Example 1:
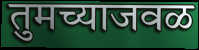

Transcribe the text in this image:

तुमच्याजवळ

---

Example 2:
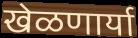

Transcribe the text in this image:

खेळणार्या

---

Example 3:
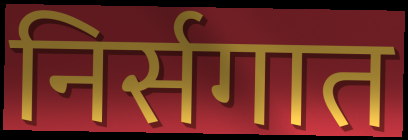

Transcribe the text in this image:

निर्सगात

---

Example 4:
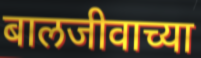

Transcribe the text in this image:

बालजीवाच्या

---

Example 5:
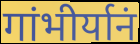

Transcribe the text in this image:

गांभीर्यानं